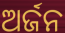
ଅର୍ଜନ